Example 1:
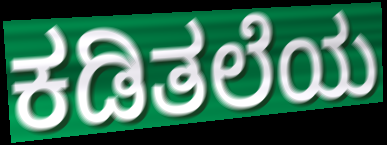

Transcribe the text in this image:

ಕಡಿತಲೆಯ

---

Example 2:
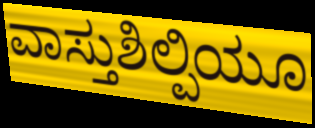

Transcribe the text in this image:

ವಾಸ್ತುಶಿಲ್ಪಿಯೂ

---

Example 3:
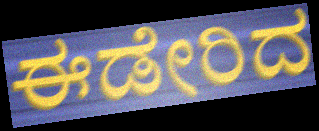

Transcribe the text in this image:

ಈಡೇರಿದ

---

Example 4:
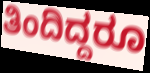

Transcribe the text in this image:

ತಿಂದಿದ್ದರೂ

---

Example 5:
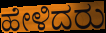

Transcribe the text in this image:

ಹೇಳಿದರು